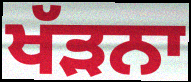
ਖੱੜਨਾ